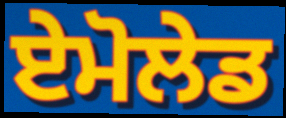
ਏਮੋਲੇਡ